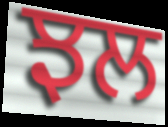
ਝਲ